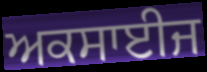
ਅਕਸਾਈਜ